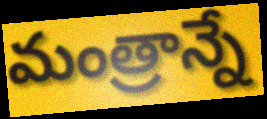
మంత్రాన్నే